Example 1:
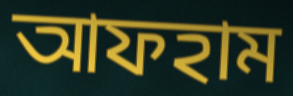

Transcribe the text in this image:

আফহাম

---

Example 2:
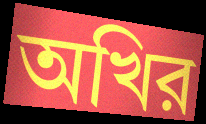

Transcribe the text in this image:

অখির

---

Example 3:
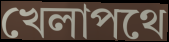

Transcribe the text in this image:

খেলাপথে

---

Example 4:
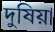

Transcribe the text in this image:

দুষিয়া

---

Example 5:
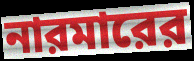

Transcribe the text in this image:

নারমারের